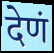
देणं